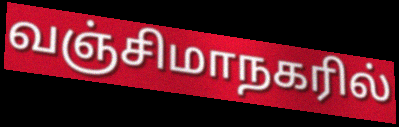
வஞ்சிமாநகரில்